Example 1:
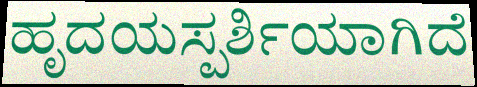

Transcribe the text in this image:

ಹೃದಯಸ್ಪರ್ಶಿಯಾಗಿದೆ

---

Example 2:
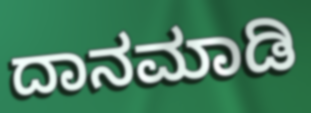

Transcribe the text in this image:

ದಾನಮಾಡಿ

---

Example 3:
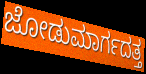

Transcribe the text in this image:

ಜೋಡುಮಾರ್ಗದತ್ತ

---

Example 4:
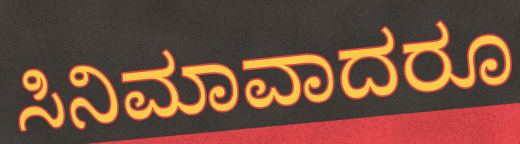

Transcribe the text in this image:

ಸಿನಿಮಾವಾದರೂ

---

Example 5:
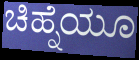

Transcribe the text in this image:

ಚಿಹ್ನೆಯೂ